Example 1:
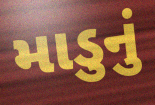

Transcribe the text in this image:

માડુનું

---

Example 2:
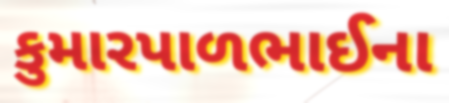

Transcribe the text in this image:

કુમારપાળભાઈના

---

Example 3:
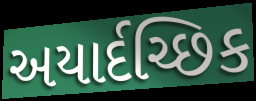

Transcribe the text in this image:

અયાર્દચ્છિક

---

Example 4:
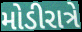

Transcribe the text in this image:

મોડીરાત્રે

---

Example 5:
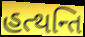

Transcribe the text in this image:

હત્થન્તિ